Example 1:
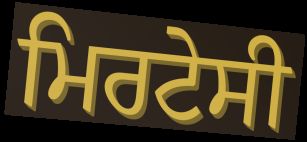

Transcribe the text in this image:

ਮਿਰਟੇਸੀ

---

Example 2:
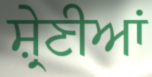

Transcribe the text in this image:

ਸ਼੍ਰੇਣੀਆਂ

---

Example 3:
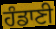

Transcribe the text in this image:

ਹੰਡਾਣੀ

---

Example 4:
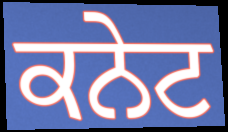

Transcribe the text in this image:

ਕਨੇਟ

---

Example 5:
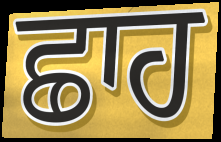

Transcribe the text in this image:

ਛਾਹ